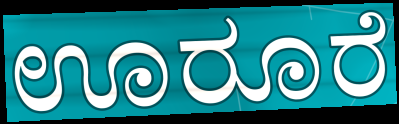
ಊರೂರೆ